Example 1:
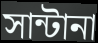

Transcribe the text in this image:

সান্টানা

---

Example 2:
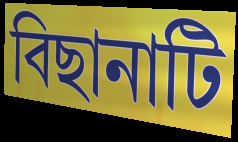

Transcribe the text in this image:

বিছানাটি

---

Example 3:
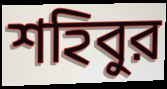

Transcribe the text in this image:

শহিবুর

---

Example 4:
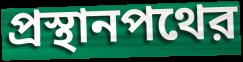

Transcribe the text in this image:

প্রস্থানপথের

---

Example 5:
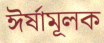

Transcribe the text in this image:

ঈর্ষামূলক